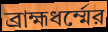
ব্রাহ্মধর্ম্মের